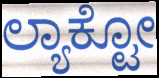
ಲ್ಯಾಕ್ಟೋ